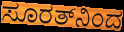
ಸೂರತ್‌ನಿಂದ